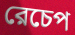
রেচেপ